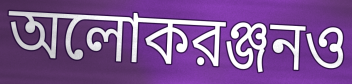
অলোকরঞ্জনও